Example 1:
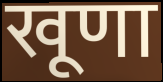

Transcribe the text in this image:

खूणा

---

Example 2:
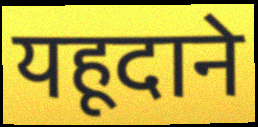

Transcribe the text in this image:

यहूदाने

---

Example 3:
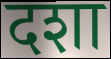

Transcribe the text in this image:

दशा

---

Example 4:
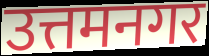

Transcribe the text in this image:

उत्तमनगर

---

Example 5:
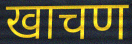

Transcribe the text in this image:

खाचण